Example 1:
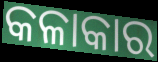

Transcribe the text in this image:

କଳାକାର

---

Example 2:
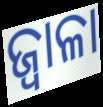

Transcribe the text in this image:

ଜ୍ୱାଳା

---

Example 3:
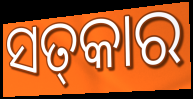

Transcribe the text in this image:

ସତ୍‌କାର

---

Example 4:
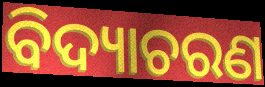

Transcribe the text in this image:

ବିଦ୍ୟାଚରଣ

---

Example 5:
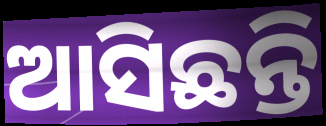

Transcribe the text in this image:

ଆସିଛନ୍ତି